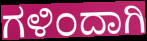
ಗಳಿಂದಾಗಿ